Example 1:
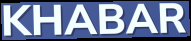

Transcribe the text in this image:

KHABAR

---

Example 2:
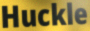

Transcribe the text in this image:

Huckle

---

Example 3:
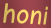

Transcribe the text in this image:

honi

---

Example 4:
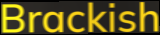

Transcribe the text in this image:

Brackish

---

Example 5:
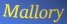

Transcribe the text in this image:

Mallory